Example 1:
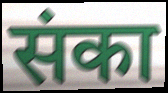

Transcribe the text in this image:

संका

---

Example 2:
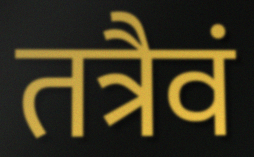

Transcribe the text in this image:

तत्रैवं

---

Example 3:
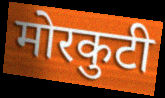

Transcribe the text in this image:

मोरकुटी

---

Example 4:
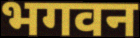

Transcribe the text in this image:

भगवन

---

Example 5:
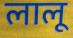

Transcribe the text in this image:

लालू